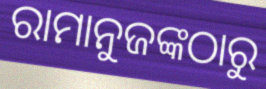
ରାମାନୁଜଙ୍କଠାରୁ